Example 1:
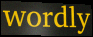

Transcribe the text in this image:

wordly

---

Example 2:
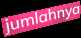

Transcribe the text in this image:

jumlahnya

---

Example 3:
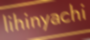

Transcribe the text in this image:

lihinyachi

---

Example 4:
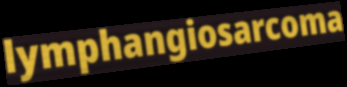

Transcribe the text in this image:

lymphangiosarcoma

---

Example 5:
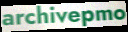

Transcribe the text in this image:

archivepmo